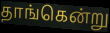
தாங்கென்று